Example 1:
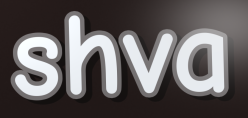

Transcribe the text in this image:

shva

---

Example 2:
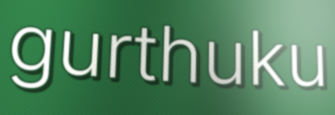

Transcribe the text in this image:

gurthuku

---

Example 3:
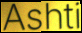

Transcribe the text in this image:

Ashti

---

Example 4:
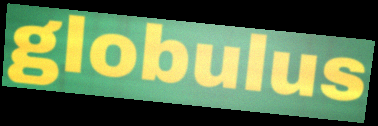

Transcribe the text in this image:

globulus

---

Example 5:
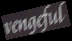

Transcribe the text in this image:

vengeful